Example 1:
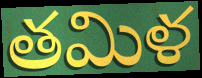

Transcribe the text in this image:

తమిళ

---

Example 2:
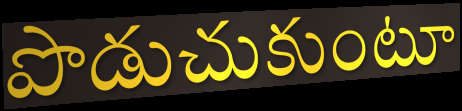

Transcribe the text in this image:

పొడుచుకుంటూ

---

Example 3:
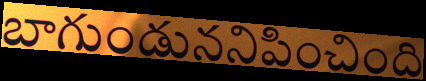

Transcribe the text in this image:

బాగుండుననిపించింది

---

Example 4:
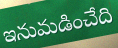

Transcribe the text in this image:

ఇనుమడించేది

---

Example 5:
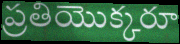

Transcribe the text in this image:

ప్రతియొక్కరూ